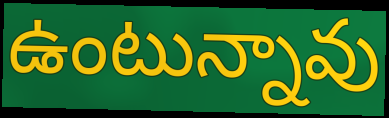
ఉంటున్నావు